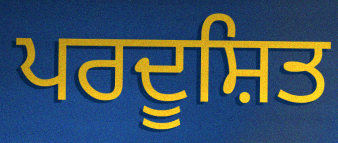
ਪਰਦੂਸ਼ਿਤ